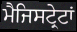
ਮੈਜਿਸਟ੍ਰੇਟਾਂ